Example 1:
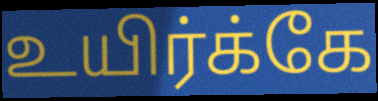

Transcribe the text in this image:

உயிர்க்கே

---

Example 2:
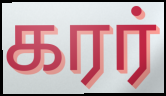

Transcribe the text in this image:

கரர்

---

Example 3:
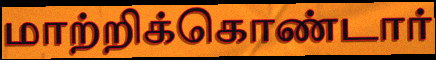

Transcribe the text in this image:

மாற்றிக்கொண்டார்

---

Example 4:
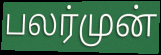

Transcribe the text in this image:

பலர்முன்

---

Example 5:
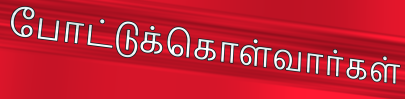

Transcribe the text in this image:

போட்டுக்கொள்வார்கள்